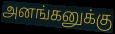
அனங்கனுக்கு